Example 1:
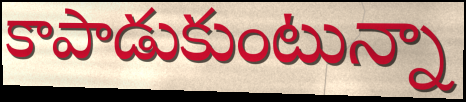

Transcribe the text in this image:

కాపాడుకుంటున్నా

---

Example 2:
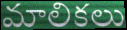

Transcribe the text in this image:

మాలికలు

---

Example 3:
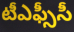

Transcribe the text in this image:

టీఎఫ్సీసీ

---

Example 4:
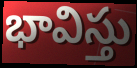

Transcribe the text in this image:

భావిస్తు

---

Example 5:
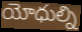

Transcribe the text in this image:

యోధుల్ని